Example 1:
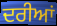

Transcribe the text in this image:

ਦਰੀਆਂ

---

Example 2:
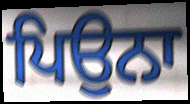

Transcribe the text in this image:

ਪਿਉਨਾ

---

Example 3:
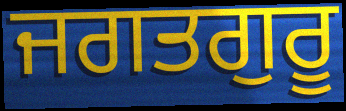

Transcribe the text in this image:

ਜਗਤਗੁਰੂ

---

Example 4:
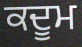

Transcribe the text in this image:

ਕਦੂਮ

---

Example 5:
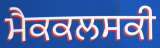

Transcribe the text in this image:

ਮੈਕਕਲਸਕੀ